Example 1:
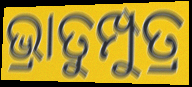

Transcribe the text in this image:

ଭ୍ରାତୁମ୍ପୁତ୍ର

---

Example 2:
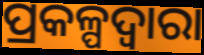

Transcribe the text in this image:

ପ୍ରକଳ୍ପଦ୍ୱାରା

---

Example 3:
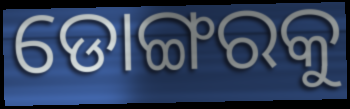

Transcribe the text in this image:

ଡୋଙ୍ଗରକୁ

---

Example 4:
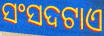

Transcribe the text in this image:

ସଂସଦଟାଏ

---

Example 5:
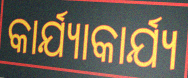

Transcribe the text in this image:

କାର୍ଯ୍ୟାକାର୍ଯ୍ୟ